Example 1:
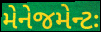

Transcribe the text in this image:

મેનેજમેન્ટઃ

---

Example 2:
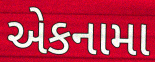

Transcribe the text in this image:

એકનામા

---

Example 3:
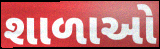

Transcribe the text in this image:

શાળાઓ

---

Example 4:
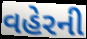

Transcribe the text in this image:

વહેરની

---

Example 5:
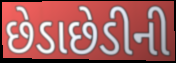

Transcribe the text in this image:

છેડાછેડીની